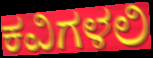
ಕವಿಗಳಲಿ